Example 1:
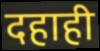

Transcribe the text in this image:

दहाही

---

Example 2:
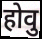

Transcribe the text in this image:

होवु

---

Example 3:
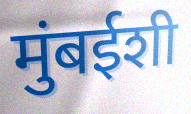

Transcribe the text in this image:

मुंबईशी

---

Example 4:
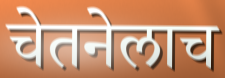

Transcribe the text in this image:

चेतनेलाच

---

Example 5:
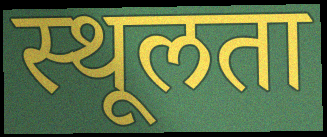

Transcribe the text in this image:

स्थूलता